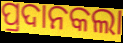
ପ୍ରଦାନକଲା